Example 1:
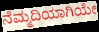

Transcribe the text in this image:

ನೆಮ್ಮದಿಯಾಗಿಯೇ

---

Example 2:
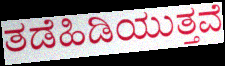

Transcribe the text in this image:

ತಡೆಹಿಡಿಯುತ್ತವೆ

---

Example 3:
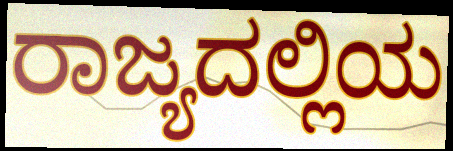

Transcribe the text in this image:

ರಾಜ್ಯದಲ್ಲಿಯ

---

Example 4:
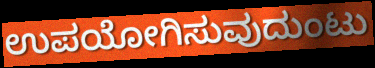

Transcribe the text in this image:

ಉಪಯೋಗಿಸುವುದುಂಟು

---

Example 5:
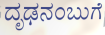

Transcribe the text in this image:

ದೃಢನಂಬುಗೆ